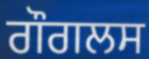
ਗੌਗਲਸ